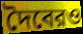
দৈবেরও